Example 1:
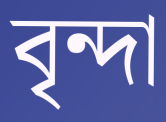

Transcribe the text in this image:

বৃন্দা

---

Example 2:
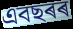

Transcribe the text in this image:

এবছৰৰ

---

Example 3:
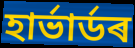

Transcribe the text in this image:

হাৰ্ভাৰ্ডৰ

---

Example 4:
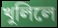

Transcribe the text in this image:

খুলিলে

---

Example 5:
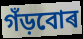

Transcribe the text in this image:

গঁড়বোৰ